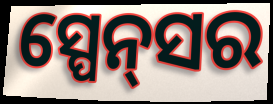
ସ୍ପେନ୍‌ସର